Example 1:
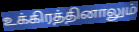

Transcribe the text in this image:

உக்கிரத்தினாலும்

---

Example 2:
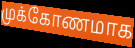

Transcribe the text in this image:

முக்கோணமாக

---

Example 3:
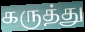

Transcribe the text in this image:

கருத்து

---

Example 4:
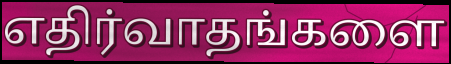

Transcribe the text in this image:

எதிர்வாதங்களை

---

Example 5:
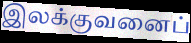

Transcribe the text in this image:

இலக்குவனைப்